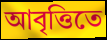
আবৃত্তিতে